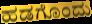
ಹಡಗೊಂದು